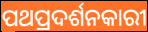
ପଥପ୍ରଦର୍ଶନକାରୀ